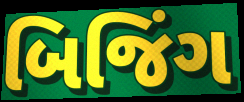
બિજિંગ